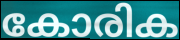
കോരിക